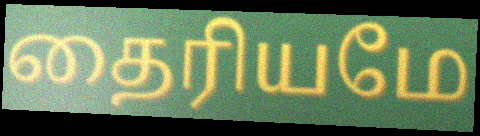
தைரியமே